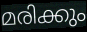
മരിക്കും